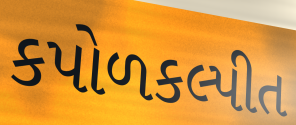
કપોળકલ્પીત